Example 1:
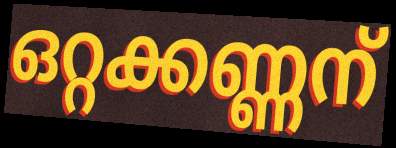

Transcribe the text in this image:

ഒറ്റക്കണ്ണന്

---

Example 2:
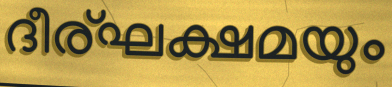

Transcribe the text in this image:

ദീര്ഘക്ഷമയും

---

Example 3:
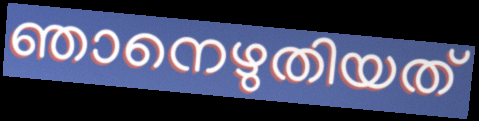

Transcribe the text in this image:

ഞാനെഴുതിയത്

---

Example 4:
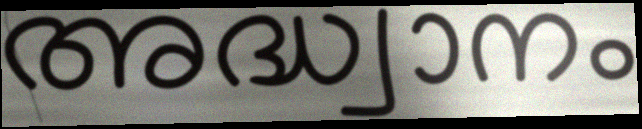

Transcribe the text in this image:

അദ്ധ്വാനം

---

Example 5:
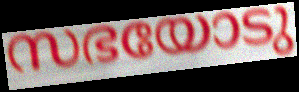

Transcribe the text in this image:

സഭയോടു